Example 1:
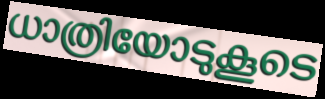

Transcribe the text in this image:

ധാത്രിയോടുകൂടെ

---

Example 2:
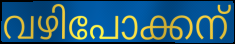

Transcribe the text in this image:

വഴിപോക്കന്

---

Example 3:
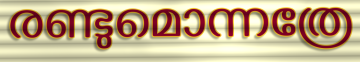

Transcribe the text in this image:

രണ്ടുമൊന്നത്രേ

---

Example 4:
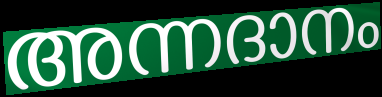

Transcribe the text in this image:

അന്നദാനം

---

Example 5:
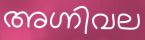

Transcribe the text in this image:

അഗ്നിവല